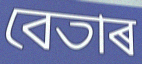
বেতাৰ